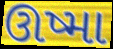
ઊષ્મા